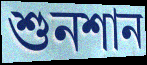
শুনশান